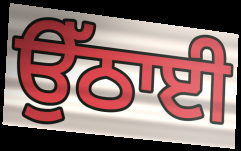
ਉੱਠਾਈ